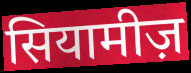
सियामीज़